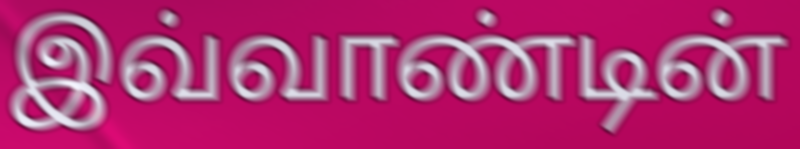
இவ்வாண்டின்